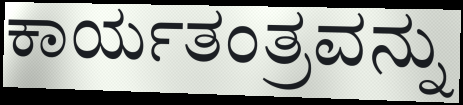
ಕಾರ್ಯತಂತ್ರವನ್ನು